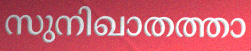
സുനിഖാതത്താ